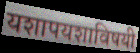
यशापयशाविषयी